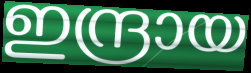
ഇന്ദ്രായ